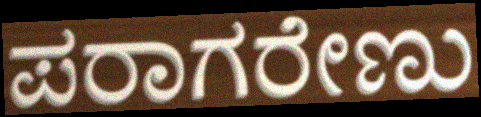
ಪರಾಗರೇಣು